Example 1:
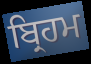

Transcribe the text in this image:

ਬ੍ਰਿਹਮ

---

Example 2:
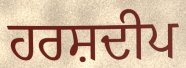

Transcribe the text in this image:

ਹਰਸ਼ਦੀਪ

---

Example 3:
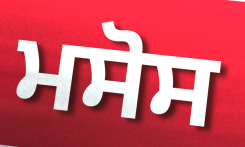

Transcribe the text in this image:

ਮਸੋਸ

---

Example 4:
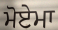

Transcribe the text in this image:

ਮੋਏਮਾ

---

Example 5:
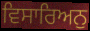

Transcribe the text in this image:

ਵਿਸਾਰਿਅਨੁ